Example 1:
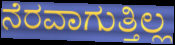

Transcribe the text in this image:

ನೆರವಾಗುತ್ತಿಲ್ಲ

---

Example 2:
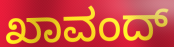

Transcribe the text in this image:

ಖಾವಂದ್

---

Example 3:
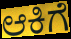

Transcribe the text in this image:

ಆಕಿಗೆ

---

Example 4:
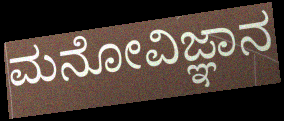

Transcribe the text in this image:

ಮನೋವಿಜ್ಞಾನ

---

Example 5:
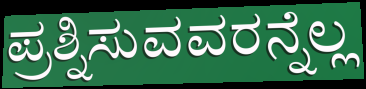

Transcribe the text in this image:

ಪ್ರಶ್ನಿಸುವವರನ್ನೆಲ್ಲ